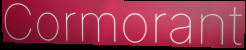
Cormorant